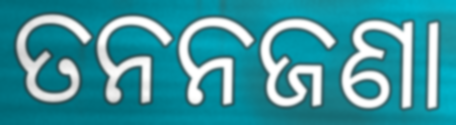
ତନନଜଣା